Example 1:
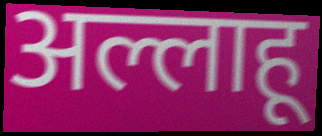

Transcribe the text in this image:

अल्लाहू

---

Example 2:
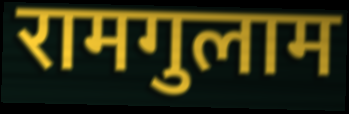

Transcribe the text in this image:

रामगुलाम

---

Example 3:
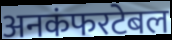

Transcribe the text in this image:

अनकंफरटेबल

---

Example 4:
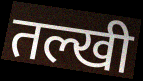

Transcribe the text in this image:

तल्‍खी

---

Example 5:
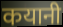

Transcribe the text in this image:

कयानी